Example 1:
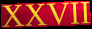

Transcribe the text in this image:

XXVII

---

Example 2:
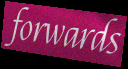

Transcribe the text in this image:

forwards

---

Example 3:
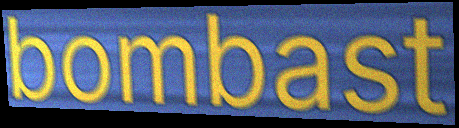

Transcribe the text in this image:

bombast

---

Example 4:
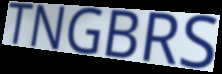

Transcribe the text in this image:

TNGBRS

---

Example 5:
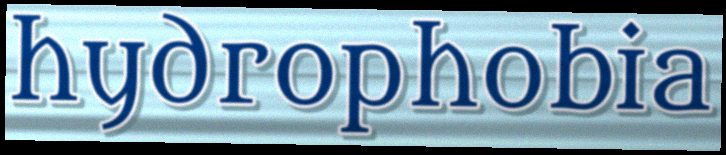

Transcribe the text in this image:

hydrophobia